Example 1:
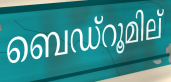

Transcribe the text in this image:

ബെഡ്റൂമില്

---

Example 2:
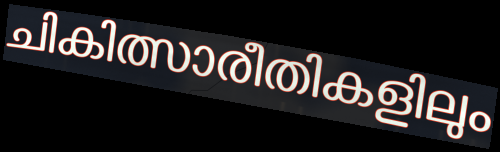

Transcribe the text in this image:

ചികിത്സാരീതികളിലും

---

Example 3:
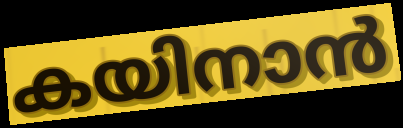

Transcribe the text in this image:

കയിനാൻ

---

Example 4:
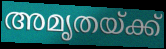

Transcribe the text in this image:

അമൃതയ്ക്ക്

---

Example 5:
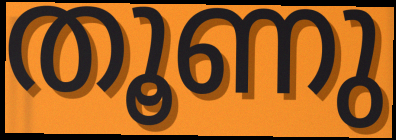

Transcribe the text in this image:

തൂണു